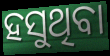
ହସୁଥିବା